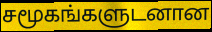
சமூகங்களுடனான